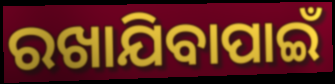
ରଖାଯିବାପାଇଁ